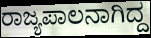
ರಾಜ್ಯಪಾಲನಾಗಿದ್ದ